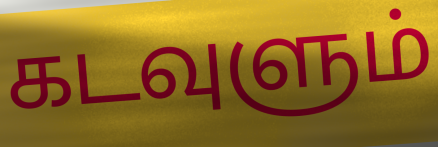
கடவுளும்